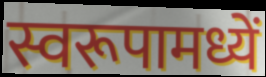
स्वरूपामध्यें